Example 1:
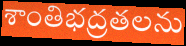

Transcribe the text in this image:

శాంతిభద్రతలను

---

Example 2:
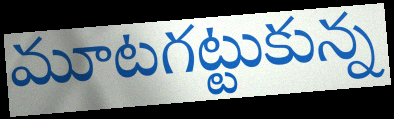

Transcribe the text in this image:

మూటగట్టుకున్న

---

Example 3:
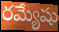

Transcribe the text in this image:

రమ్యేషు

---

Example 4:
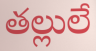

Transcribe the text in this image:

తల్లులే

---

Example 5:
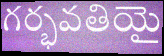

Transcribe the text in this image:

గర్భవతియై